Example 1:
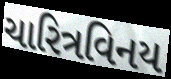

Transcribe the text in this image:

ચારિત્રવિનય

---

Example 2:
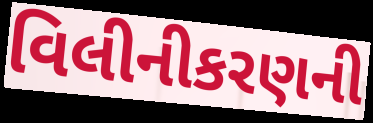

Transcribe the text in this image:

વિલીનીકરણની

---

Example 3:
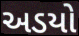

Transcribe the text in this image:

અડયો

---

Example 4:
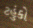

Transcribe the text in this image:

ટહુંકો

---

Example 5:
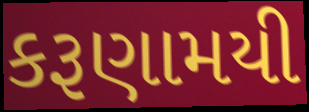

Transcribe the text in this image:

કરૂણામયી